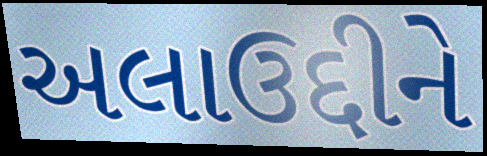
અલાઉદ્દીને